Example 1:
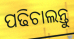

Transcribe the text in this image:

ପଢିଚାଲନ୍ତୁ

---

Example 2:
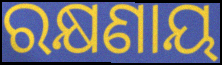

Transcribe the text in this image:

ରକ୍ଷଣାୟ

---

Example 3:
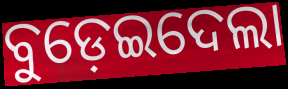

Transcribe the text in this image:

ବୁଡ଼େଇଦେଲା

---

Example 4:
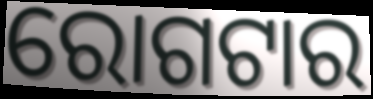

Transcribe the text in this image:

ରୋଗଟାର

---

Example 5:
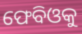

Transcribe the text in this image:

ଫେବିଓକୁ